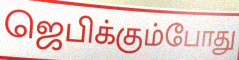
ஜெபிக்கும்போது